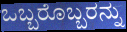
ಒಬ್ಬರೊಬ್ಬರನ್ನು